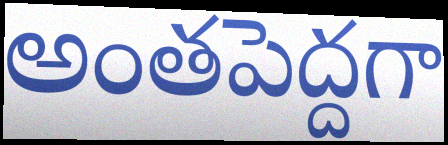
అంతపెద్దగా